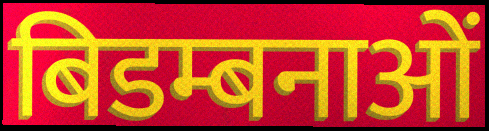
बिडम्बनाओं